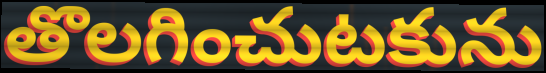
తొలగించుటకును